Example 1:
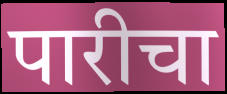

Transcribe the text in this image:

पारीचा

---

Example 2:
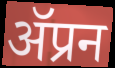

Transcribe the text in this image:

ॲप्रन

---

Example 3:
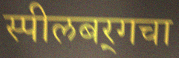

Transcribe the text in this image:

स्पीलबर्गचा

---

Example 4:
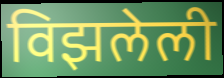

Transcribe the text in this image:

विझलेली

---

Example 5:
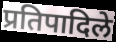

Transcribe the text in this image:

प्रतिपादिले